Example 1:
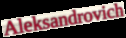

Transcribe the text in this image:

Aleksandrovich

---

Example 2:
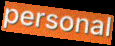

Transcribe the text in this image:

personal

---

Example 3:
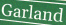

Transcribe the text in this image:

Garland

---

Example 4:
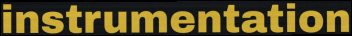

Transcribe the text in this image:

instrumentation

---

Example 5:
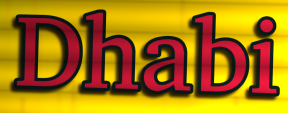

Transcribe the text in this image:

Dhabi